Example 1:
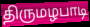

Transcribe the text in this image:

திருமழபாடி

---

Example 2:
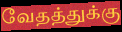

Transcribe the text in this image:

வேதத்துக்கு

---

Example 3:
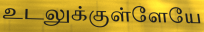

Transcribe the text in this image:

உடலுக்குள்ளேயே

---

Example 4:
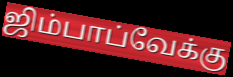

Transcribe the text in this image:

ஜிம்பாப்வேக்கு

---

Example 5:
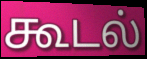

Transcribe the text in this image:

கூடல்